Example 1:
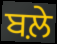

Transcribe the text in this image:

ਬਲ਼ੇ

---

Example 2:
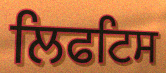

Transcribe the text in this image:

ਲਿਫਟਿਸ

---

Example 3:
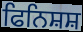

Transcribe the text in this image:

ਫਿਨਿਸ਼ਸ਼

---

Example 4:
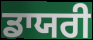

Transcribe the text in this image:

ਡਾਯਰੀ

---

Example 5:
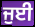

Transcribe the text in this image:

ਜੁਈ